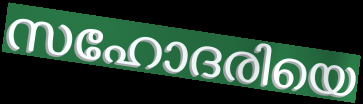
സഹോദരിയെ